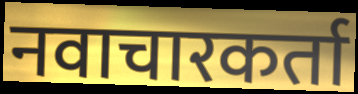
नवाचारकर्ता